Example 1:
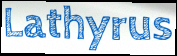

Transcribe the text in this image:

Lathyrus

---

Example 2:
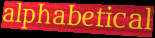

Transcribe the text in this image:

alphabetical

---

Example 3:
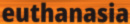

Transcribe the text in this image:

euthanasia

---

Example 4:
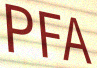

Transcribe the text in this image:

PFA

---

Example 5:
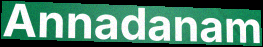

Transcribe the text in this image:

Annadanam